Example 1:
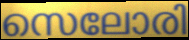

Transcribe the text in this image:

സെലോരി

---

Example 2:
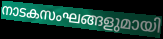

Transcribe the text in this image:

നാടകസംഘങ്ങളുമായി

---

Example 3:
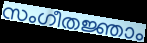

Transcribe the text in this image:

സംഗീതജ്ഞാം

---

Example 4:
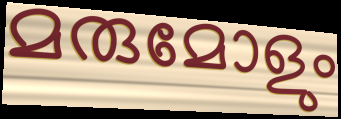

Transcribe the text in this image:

മരുമോളും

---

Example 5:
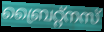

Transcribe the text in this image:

ബ്രൈറ്റ്നസ്